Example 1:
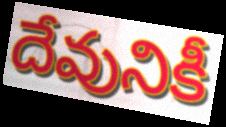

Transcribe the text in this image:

దేవునికీ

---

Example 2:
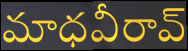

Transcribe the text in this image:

మాధవీరావ్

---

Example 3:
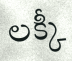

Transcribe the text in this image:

లక్కీ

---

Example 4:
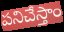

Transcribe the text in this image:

పనిచేస్తాం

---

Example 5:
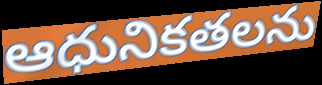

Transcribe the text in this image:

ఆధునికతలను